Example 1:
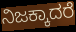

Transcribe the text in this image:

ನಿಜಕ್ಕಾದರೆ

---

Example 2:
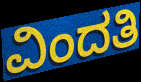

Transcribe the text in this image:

ವಿಂದತಿ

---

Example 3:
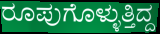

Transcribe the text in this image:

ರೂಪುಗೊಳ್ಳುತ್ತಿದ್ದ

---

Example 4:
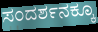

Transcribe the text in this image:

ಸಂದರ್ಶನಕ್ಕೂ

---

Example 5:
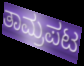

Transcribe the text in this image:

ತಾಮ್ರಪಟ